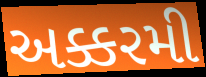
અક્કરમી